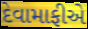
દેવામાફીએ